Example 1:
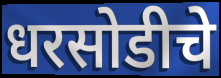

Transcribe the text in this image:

धरसोडीचे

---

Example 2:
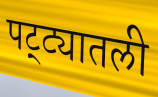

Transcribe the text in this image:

पट्ट्यातली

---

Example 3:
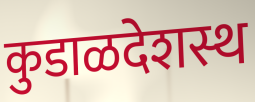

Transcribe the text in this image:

कुडाळदेशस्थ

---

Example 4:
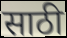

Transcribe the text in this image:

साठी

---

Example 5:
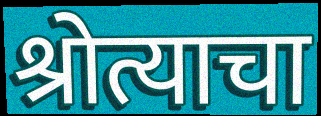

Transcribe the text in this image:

श्रोत्याचा